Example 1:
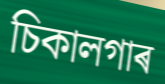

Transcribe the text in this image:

চিকালগাৰ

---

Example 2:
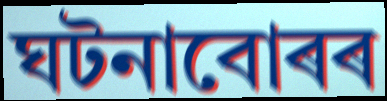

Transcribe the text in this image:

ঘটনাবোৰৰ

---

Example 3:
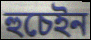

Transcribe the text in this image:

হুচেইন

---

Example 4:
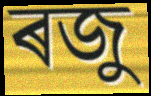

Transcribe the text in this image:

ৰজু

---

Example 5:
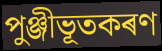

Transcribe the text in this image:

পুঞ্জীভূতকৰণ